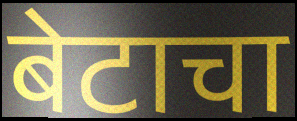
बेटाचा